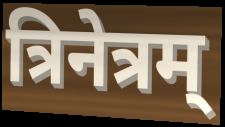
त्रिनेत्रम्